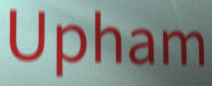
Upham